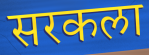
सरकला